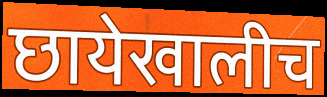
छायेखालीच